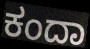
ಕಂದಾ